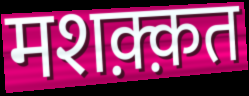
मशक़्क़त